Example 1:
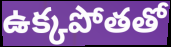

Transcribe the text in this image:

ఉక్కపోతతో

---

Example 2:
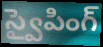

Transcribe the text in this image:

స్వైపింగ్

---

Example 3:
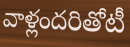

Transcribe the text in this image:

వాళ్లందరితోటీ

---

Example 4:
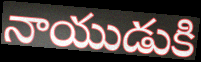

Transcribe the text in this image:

నాయుడుకి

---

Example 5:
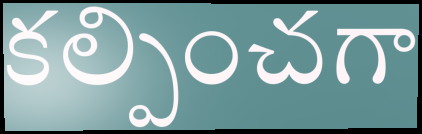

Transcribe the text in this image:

కల్పించగా